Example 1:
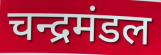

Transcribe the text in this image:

चन्द्रमंडल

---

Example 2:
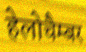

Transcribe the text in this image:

हेलोचैम्बर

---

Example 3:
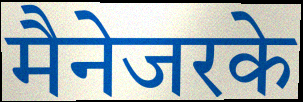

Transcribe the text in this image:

मैनेजरके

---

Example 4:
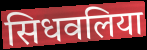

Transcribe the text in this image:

सिधवलिया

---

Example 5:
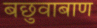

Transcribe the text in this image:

बछुवाबाण